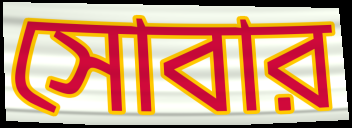
সোবার